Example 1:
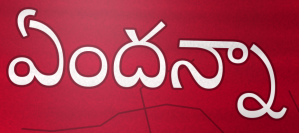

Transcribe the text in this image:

ఏందన్నా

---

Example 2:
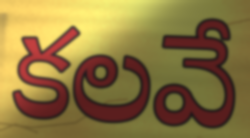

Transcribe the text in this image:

కలవే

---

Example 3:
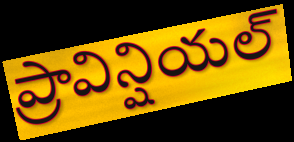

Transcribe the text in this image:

ప్రావిన్షియల్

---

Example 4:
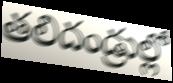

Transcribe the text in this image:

తలిదండ్రుల్లో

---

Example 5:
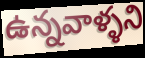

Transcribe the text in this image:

ఉన్నవాళ్ళని